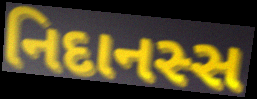
નિદાનસ્સ